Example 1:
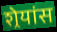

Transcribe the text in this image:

श्रेयांस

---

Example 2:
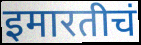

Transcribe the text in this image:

इमारतीचं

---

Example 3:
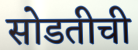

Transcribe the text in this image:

सोडतीची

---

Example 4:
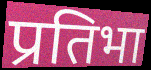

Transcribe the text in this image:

प्रतिभा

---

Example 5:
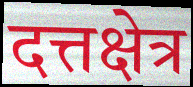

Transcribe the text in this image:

दत्तक्षेत्र